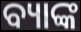
ବ୍ୟାଙ୍କ